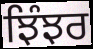
ਝਿੰਝਰ